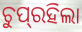
ଚୁପ୍‌ରହିଲା